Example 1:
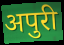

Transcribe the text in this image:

अपुरी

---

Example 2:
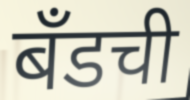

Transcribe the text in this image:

बँडची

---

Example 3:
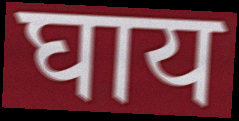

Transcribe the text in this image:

घाय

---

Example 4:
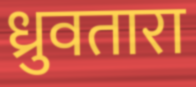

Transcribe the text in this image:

ध्रुवतारा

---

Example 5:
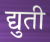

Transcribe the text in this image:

द्युती